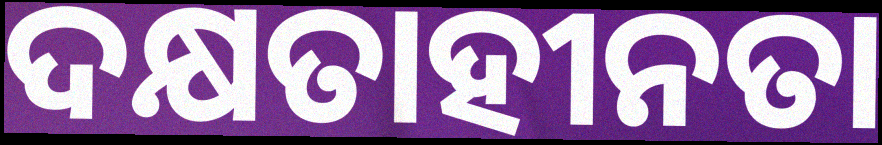
ଦକ୍ଷତାହୀନତା